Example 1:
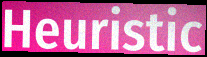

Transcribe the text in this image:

Heuristic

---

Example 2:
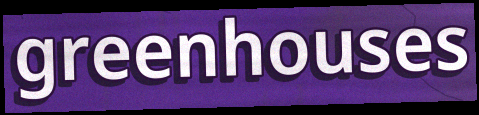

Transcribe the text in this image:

greenhouses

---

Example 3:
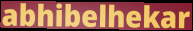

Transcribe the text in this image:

abhibelhekar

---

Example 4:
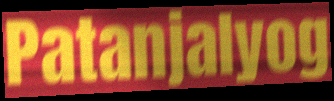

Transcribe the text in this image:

Patanjalyog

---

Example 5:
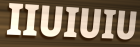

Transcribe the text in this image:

IIUIUIU